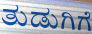
ತುಡುಗಿಗೆ